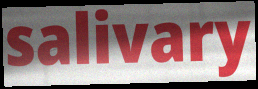
salivary